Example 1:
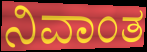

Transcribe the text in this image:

ನಿವಾಂತ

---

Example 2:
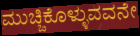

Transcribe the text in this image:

ಮುಚ್ಚಿಕೊಳ್ಳುವವನೇ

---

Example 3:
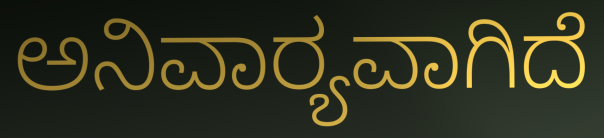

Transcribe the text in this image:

ಅನಿವಾರ‍್ಯವಾಗಿದೆ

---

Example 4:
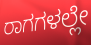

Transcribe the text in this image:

ರಾಗಗಳಲ್ಲೇ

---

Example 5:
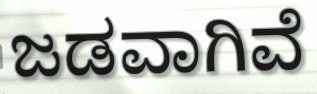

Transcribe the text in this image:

ಜಡವಾಗಿವೆ